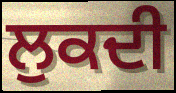
ਲੁਕਦੀ